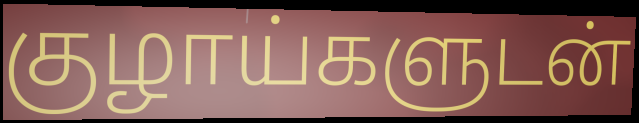
குழாய்களுடன்